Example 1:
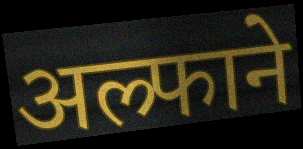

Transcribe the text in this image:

अल्फाने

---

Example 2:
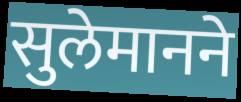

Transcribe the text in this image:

सुलेमानने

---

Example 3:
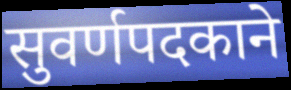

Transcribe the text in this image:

सुवर्णपदकाने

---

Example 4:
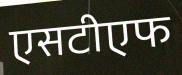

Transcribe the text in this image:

एसटीएफ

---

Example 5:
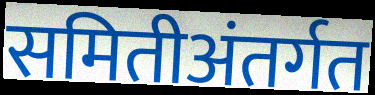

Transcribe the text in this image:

समितीअंतर्गत